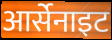
आर्सेनाइट